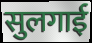
सुलगाई